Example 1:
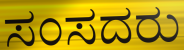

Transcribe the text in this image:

ಸಂಸದರು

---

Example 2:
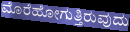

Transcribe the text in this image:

ಮೊರೆಹೋಗುತ್ತಿರುವುದು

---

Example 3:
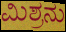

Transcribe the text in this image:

ಮಿಶ್ರನು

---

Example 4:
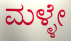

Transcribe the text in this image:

ಮಳ್ಳೇ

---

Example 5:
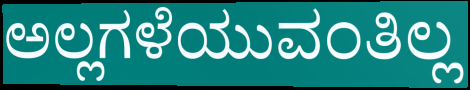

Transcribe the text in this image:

ಅಲ್ಲಗಳೆಯುವಂತಿಲ್ಲ